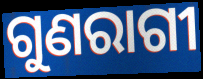
ଗୁଣରାଗୀ